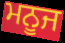
ਮਨੂਜ